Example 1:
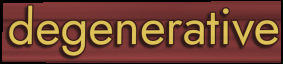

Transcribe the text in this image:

degenerative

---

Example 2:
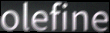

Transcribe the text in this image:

olefine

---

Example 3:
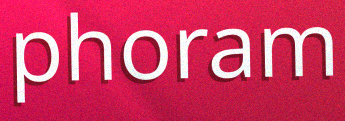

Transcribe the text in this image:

phoram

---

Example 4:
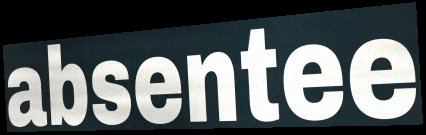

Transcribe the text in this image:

absentee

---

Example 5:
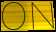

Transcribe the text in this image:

ON